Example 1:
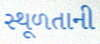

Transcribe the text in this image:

સ્થૂળતાની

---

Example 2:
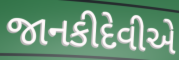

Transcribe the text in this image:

જાનકીદેવીએ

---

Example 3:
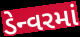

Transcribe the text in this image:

ડેન્વરમાં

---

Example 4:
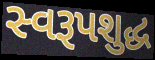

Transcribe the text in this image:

સ્વરૂપશુદ્ધ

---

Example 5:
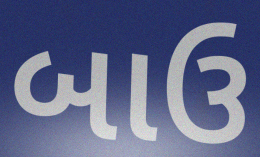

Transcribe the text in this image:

બાઉ